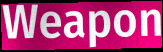
Weapon